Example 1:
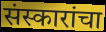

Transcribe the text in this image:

संस्कारांचा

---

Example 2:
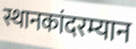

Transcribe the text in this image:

स्थानकांदरम्यान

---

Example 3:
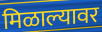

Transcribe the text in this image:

मिळाल्यावर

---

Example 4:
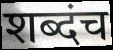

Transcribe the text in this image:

शब्दंच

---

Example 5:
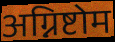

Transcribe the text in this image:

अग्निष्टोम